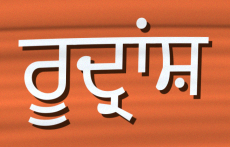
ਰੂਦ੍ਰਾਂਸ਼